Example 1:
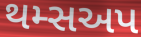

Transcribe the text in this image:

થમ્સઅપ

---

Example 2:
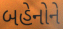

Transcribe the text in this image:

બહેનોને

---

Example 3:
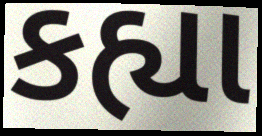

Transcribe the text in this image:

કહ્યા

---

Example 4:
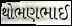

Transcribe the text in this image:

થોભણભાઈ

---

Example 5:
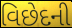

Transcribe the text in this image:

વિછેદની